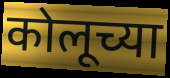
कोलूच्या